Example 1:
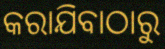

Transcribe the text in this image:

କରାଯିବାଠାରୁ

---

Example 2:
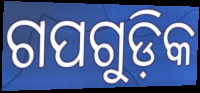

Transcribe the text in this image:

ଗପଗୁଡ଼ିକ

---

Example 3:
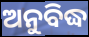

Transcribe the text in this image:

ଅନୁବିଦ୍ଧ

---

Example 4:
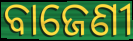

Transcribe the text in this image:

ବାଜେଣୀ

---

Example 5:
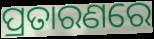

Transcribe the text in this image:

ପ୍ରତାରଣରେ